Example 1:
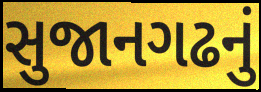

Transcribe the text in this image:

સુજાનગઢનું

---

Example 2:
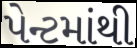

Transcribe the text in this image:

પેન્ટમાંથી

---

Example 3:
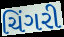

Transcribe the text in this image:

ચિંગરી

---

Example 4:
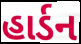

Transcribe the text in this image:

હાર્ડન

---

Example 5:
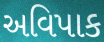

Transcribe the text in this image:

અવિપાક